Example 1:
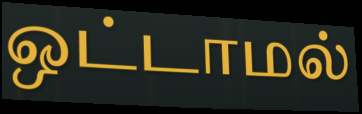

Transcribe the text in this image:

ஒட்டாமல்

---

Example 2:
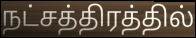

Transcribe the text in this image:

நட்சத்திரத்தில்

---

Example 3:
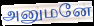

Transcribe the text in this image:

அனுமனே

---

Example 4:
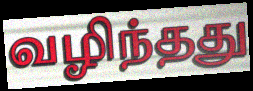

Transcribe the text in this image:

வழிந்தது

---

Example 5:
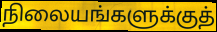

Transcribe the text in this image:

நிலையங்களுக்குத்